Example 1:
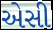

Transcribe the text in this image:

એસી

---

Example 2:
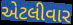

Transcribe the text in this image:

એટલીવાર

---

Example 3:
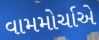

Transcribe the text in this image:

વામમોર્ચાએ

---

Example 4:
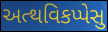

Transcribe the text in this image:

અત્થવિકપ્પેસુ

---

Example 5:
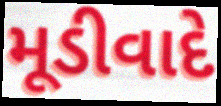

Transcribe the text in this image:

મૂડીવાદે